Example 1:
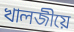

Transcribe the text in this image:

খালজীয়ে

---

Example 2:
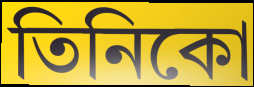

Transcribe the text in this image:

তিনিকো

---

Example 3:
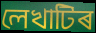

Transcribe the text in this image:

লেখাটিৰ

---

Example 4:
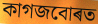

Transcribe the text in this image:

কাগজবোৰত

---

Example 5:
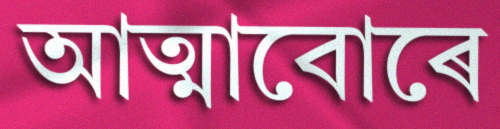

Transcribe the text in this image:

আত্মাবোৰে